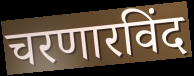
चरणारविंद